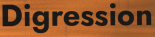
Digression